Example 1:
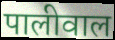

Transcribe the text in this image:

पालीवाल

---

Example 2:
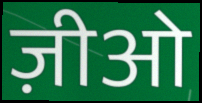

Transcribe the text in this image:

ज़ीओ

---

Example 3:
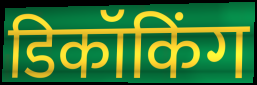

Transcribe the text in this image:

डिकॉकिंग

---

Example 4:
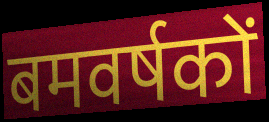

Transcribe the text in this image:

बमवर्षकों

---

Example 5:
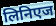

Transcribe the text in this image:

लिनिएज